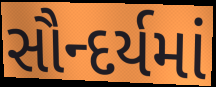
સૌન્દર્યમાં